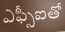
ఎఫ్సీఐతో